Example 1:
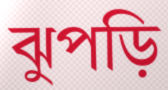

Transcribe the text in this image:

ঝুপড়ি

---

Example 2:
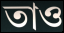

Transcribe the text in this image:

তাও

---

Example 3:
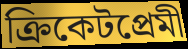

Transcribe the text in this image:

ক্রিকেটপ্রেমী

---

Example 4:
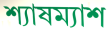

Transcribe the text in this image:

শ্যাষম্যাশ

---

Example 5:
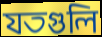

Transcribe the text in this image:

যতগুলি